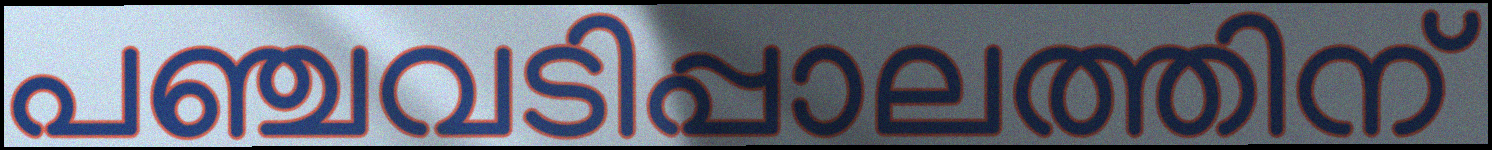
പഞ്ചവടിപ്പാലത്തിന്